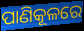
ପାଣିକୂଳରେ